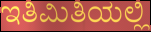
ಇತಿಮಿತಿಯಲ್ಲಿ